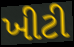
ખીટી